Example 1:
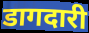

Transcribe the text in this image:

डागदारी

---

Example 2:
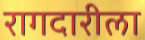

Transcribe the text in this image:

रागदारीला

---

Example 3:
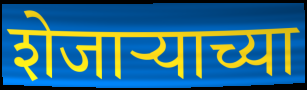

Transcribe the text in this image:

शेजार्‍याच्या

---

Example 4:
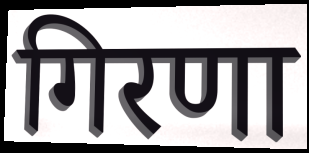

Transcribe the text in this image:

गिरणा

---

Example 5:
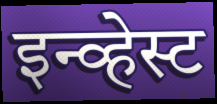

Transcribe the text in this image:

इन्व्हेस्ट